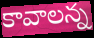
కావాలన్న